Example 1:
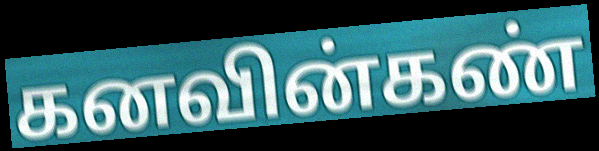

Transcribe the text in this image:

கனவின்கண்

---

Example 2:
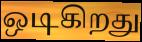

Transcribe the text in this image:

ஒடிகிறது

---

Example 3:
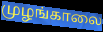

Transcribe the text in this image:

முழங்காலை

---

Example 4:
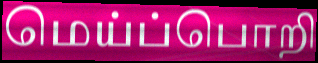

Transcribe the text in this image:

மெய்ப்பொறி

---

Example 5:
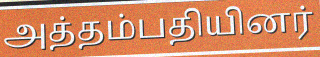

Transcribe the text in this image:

அத்தம்பதியினர்